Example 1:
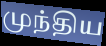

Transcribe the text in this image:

முந்திய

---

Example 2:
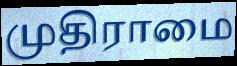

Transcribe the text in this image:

முதிராமை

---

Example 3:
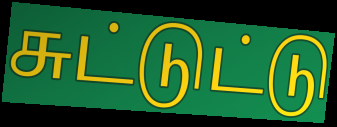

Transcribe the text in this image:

சுட்டுட்டு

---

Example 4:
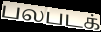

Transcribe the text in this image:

பலபடக்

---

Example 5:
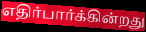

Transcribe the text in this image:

எதிர்பார்க்கின்றது